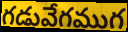
గడువేగముగ